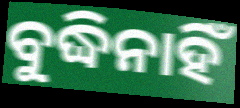
ବୁଦ୍ଧିନାହିଁ